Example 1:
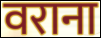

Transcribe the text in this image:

वराना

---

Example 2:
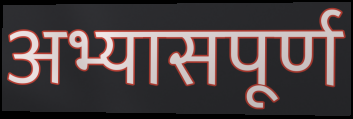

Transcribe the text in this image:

अभ्यासपूर्ण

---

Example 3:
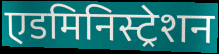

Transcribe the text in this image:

एडमिनिस्ट्रेशन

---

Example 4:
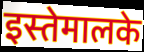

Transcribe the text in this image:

इस्तेमालके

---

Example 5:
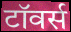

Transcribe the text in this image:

टॉवर्स